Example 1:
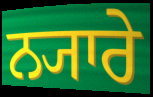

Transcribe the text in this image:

ਨ੍ਯਾਰੇ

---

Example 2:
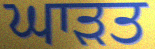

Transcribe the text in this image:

ਘਾੜਤ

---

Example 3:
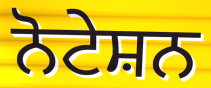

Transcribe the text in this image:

ਨੋਟੇਸ਼ਨ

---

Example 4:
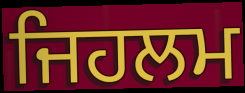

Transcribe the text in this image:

ਜਿਹਲਮ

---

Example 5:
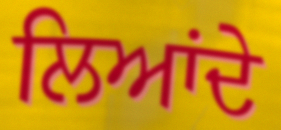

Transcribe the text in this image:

ਲਿਆਂਦੇ